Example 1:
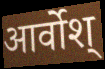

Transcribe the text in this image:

आर्वोश्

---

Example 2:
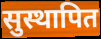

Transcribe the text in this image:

सुस्थापित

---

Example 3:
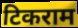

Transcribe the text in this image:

टिकराम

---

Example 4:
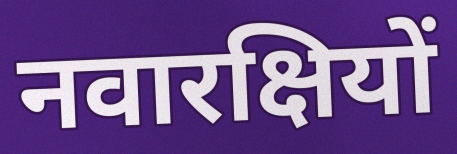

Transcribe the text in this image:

नवारक्षियों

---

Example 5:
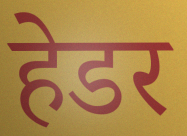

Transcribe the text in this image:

हेडर